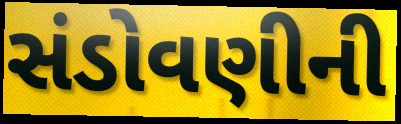
સંડોવણીની